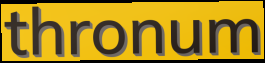
thronum